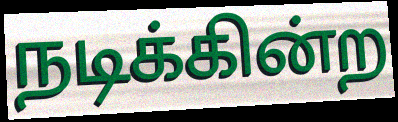
நடிக்கின்ற